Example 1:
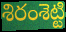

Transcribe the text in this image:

శిరంశెట్టి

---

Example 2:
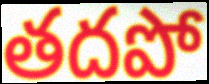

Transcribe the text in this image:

తదపో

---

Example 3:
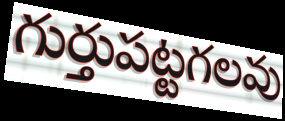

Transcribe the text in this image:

గుర్తుపట్టగలవు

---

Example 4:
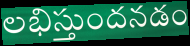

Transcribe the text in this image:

లభిస్తుందనడం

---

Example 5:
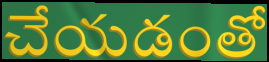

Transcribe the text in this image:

చేయడంతో